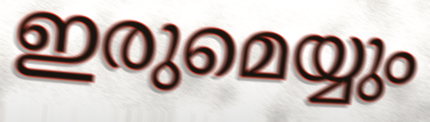
ഇരുമെയ്യും